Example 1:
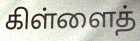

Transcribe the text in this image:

கிள்ளைத்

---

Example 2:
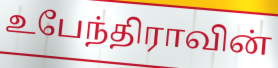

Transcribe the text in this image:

உபேந்திராவின்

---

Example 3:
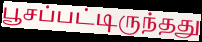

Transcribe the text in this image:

பூசப்பட்டிருந்தது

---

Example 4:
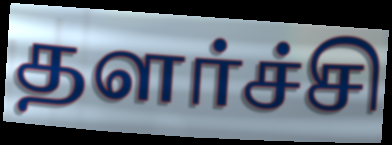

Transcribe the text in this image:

தளர்ச்சி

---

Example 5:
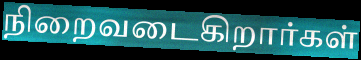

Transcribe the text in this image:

நிறைவடைகிறார்கள்